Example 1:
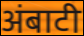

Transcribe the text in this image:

अंबाटी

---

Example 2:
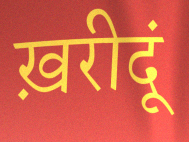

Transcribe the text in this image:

ख़रीदूं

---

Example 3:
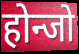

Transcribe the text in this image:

होन्जो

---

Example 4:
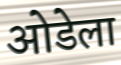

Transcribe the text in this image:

ओडेला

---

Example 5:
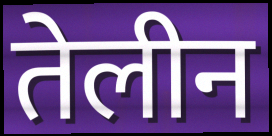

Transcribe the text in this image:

तेलीन